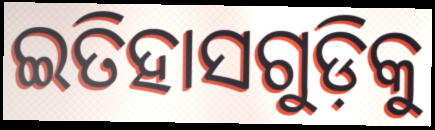
ଇତିହାସଗୁଡ଼ିକୁ